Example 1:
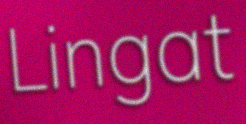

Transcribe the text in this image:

Lingat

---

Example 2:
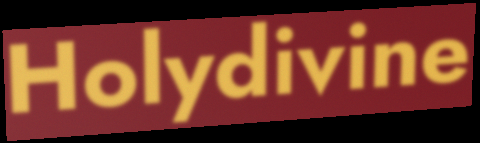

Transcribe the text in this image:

Holydivine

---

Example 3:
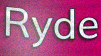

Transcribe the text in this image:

Ryde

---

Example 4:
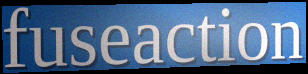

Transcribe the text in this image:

fuseaction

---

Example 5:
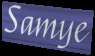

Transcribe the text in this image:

Samye